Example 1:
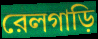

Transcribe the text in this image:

রেলগাড়ি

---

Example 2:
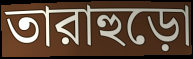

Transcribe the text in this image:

তারাহুড়ো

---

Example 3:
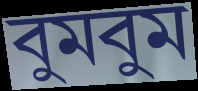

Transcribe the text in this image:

বুমবুম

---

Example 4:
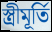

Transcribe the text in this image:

স্ত্রীমূর্তি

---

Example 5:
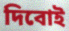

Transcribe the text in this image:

দিবোই